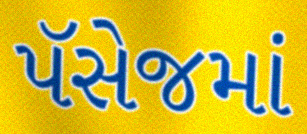
પૅસેજમાં